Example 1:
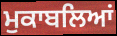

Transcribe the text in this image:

ਮੁਕਾਬਲਿਆਂ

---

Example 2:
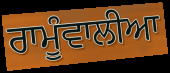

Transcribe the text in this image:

ਰਾਮੂੰਵਾਲੀਆ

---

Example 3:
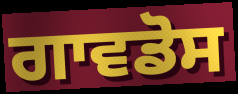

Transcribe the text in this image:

ਗਾਵਡੋਸ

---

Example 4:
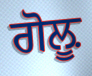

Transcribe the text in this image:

ਗੋਲ਼ੂ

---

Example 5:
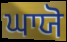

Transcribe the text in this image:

ਘਾਯੋ